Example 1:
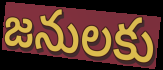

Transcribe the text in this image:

జనులకు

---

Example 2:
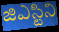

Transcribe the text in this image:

జిఎస్టిని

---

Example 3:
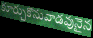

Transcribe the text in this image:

కూర్చుకొనువాడవునైన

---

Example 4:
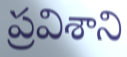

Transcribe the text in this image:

ప్రవిశాని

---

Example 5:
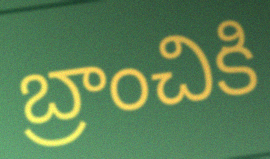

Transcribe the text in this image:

బ్రాంచికి